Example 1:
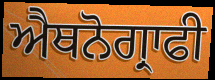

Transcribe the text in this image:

ਐਥਨੋਗ੍ਰਾਫੀ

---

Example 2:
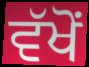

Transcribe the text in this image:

ਵੱਖੋਂ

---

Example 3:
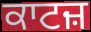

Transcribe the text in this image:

ਕਾਟਜ਼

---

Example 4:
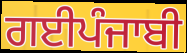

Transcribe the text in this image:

ਗਈਪੰਜਾਬੀ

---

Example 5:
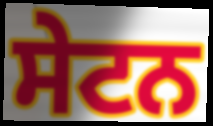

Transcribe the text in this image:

ਸੇਟਨ